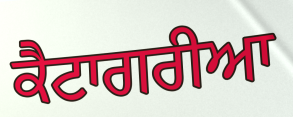
ਕੈਟਾਗਰੀਆ